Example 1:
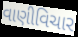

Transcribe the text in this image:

વાણીવિચાર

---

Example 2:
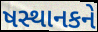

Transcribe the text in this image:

ષસ્થાનકને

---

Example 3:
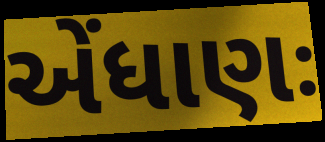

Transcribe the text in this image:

એંધાણઃ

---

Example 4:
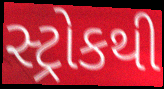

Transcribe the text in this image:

સ્ટ્રોકથી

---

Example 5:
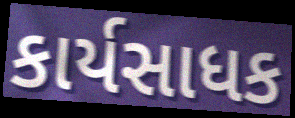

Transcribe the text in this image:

કાર્યસાધક